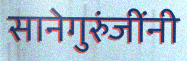
सानेगुरुंजींनी